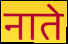
नाते